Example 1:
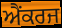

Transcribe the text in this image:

ਐਂਕਰਜ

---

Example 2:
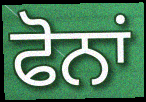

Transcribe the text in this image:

ਫੋਨਾਂ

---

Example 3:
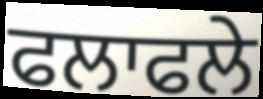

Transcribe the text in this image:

ਫਲਾਫਲੇ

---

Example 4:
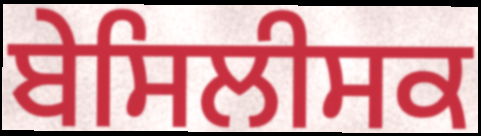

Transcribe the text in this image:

ਬੇਸਿਲੀਸਕ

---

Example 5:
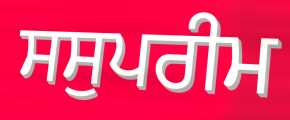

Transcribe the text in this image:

ਸਸੁਪਰੀਮ